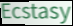
Ecstasy